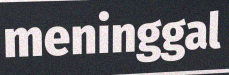
meninggal